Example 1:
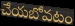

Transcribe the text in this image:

చేయబోవటం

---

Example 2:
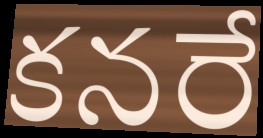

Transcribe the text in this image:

కనరే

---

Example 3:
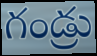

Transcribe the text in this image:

గండ్రు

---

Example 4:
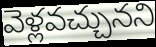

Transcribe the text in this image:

వెళ్లవచ్చునని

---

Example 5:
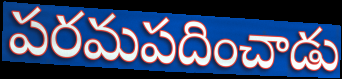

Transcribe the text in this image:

పరమపదించాడు